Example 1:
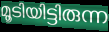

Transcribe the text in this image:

മൂടിയിട്ടിരുന്ന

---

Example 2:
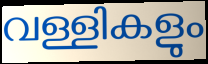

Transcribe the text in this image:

വള്ളികളും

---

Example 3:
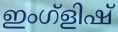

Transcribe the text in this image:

ഇംഗ്ളിഷ്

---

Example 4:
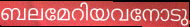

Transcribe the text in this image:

ബലമേറിയവനോടു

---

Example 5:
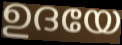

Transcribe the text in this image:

ഉദയേ